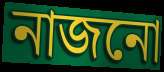
নাজনো